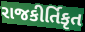
રાજકીર્તિકૃત